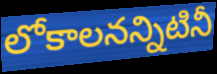
లోకాలనన్నిటినీ